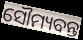
ସୌମ୍ୟବନ୍ତ